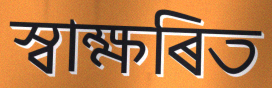
স্বাক্ষৰিত